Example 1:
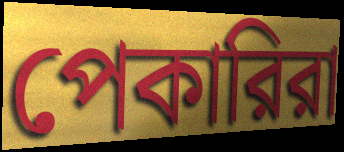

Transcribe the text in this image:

পেকারিরা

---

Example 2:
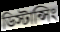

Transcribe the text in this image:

ডিস্টান্সিং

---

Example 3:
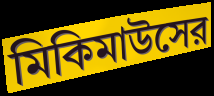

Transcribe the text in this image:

মিকিমাউসের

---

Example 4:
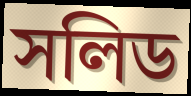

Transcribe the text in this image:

সলিড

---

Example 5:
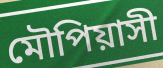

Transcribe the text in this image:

মৌপিয়াসী